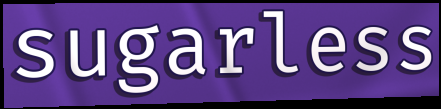
sugarless